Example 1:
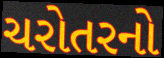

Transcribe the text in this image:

ચરોતરનો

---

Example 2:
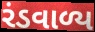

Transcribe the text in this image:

રંડવાળ્ય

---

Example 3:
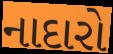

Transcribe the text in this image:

નાદારો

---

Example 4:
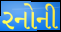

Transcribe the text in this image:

રનોની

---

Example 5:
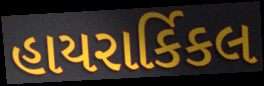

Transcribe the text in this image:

હાયરાર્કિકલ